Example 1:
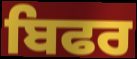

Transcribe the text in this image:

ਬਿਫਰ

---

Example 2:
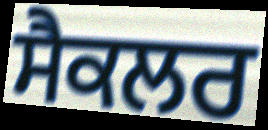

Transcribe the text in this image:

ਸੈਕਲਰ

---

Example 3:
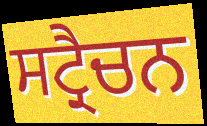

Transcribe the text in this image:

ਸਟ੍ਰੈਚਨ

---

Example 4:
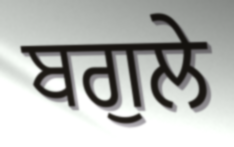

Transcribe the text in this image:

ਬਗੁਲੇ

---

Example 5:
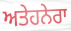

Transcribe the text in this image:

ਅਤੇਹਨੇਰਾ